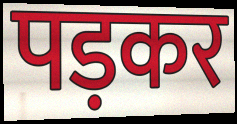
पड़कर